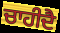
ਚਾਹੀਦੈ